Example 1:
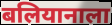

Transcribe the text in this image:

बलियानाला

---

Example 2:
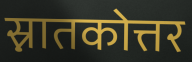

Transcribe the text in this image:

स्नातकोत्तर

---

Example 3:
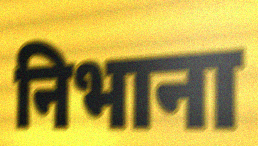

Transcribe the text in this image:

निभाना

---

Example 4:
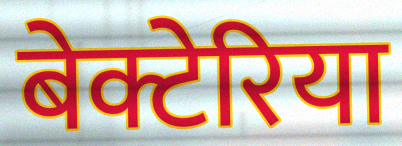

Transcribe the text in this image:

बेक्टेरिया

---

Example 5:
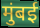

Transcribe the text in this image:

मुंबई